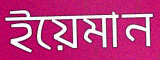
ইয়েমান